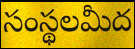
సంస్థలమీద